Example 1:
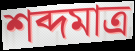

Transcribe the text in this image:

শব্দমাত্র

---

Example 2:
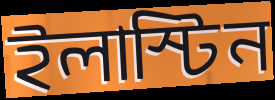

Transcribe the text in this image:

ইলাস্টিন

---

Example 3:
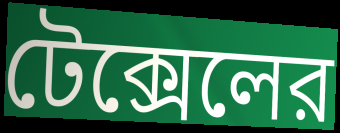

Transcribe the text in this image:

টেক্সেলের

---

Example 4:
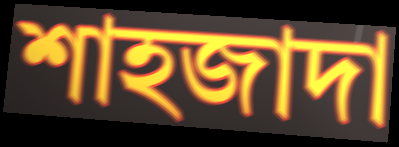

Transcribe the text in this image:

শাহজাদা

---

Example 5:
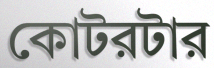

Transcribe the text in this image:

কোটরটার